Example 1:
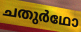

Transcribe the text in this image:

ചതുർഥോ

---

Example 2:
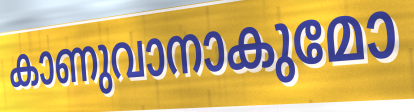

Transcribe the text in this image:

കാണുവാനാകുമോ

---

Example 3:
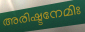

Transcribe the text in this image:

അരിഷ്ടനേമിഃ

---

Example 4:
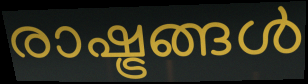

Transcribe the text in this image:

രാഷ്ട്രങ്ങൾ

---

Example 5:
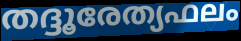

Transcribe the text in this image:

തദ്ദൂരേത്യഫലം